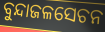
ବୁନ୍ଦାଜଳସେଚନ